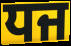
ਧਜ